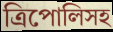
ত্রিপোলিসহ